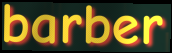
barber